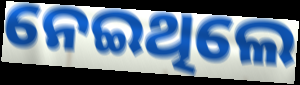
ନେଇଥିଲେ